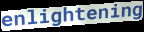
enlightening